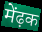
मेंढ़क